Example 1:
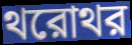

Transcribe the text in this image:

থরোথর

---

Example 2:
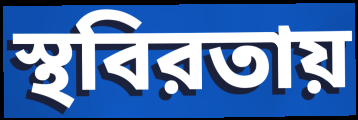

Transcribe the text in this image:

স্থবিরতায়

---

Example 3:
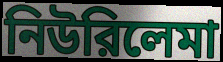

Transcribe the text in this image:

নিউরিলেমা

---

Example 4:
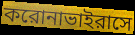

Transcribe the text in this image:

করোনাভাইরাসে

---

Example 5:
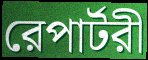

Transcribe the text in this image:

রেপার্টরী